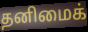
தனிமைக்